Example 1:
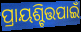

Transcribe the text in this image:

ପ୍ରାୟଶ୍ଚିତ୍ତପାଇଁ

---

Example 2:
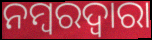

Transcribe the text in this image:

ନମ୍ବରଦ୍ୱାରା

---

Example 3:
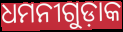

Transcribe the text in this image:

ଧମନୀଗୁଡ଼ାକ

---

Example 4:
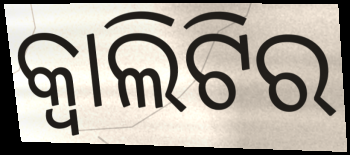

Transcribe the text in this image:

କ୍ୱାଲିଟିର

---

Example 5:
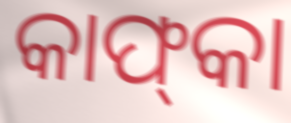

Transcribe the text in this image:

କାଫ୍‍କା